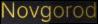
Novgorod